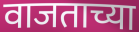
वाजताच्या